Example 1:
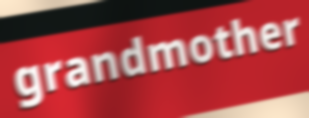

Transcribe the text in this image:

grandmother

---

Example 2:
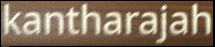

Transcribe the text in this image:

kantharajah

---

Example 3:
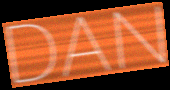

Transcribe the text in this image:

DAN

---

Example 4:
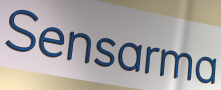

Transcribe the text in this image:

Sensarma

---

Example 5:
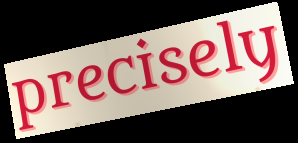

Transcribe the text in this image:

precisely